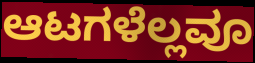
ಆಟಗಳೆಲ್ಲವೂ